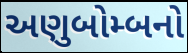
અણુબોમ્બનો